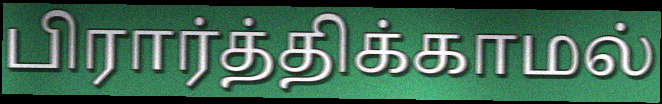
பிரார்த்திக்காமல்